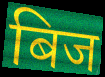
बिज